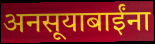
अनसूयाबाईंना